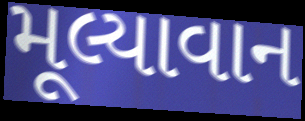
મૂલ્યાવાન